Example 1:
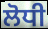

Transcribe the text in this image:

ਲੋਧੀ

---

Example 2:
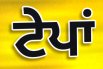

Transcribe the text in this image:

ਟੇਪਾਂ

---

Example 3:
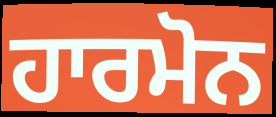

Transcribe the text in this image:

ਹਾਰਮੋਨ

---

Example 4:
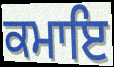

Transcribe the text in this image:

ਕਮਾਇ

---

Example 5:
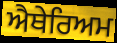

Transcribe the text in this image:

ਐਥੇਰਿਅਮ